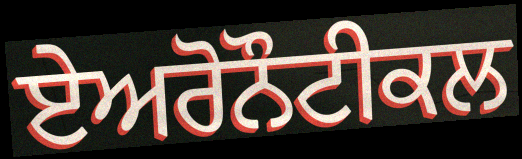
ਏਅਰੋਨੌਟੀਕਲ